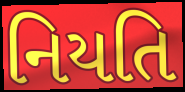
નિયતિ